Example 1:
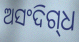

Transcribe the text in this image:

ଅସଂଦିଗ୍‌ଧ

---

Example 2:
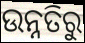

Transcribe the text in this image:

ଉନ୍ନତିରୁ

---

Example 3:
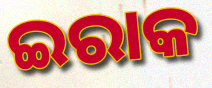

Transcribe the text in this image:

ଇରାକ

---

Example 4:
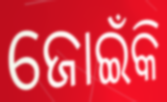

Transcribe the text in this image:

ଜୋଇଁକି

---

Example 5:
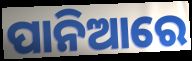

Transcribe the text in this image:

ପାନିଆରେ